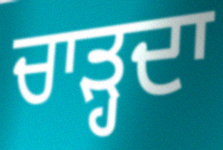
ਚਾੜ੍ਹਦਾ